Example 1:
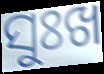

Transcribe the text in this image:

ସୁଃଖ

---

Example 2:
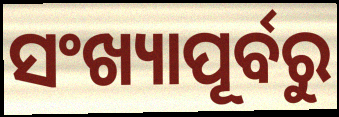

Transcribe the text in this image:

ସଂଖ୍ୟାପୂର୍ବରୁ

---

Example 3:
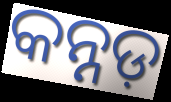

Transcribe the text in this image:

କନ୍ନଡ଼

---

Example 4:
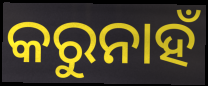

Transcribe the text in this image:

କରୁନାହଁ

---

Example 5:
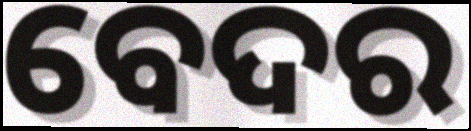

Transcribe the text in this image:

ବେଦର